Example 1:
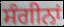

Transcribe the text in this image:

ਸੰਗੀਨਾਂ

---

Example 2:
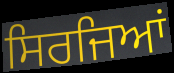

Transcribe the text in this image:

ਸਿਰਜਿਆਂ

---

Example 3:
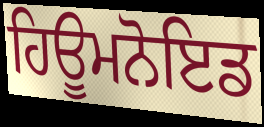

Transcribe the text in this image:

ਹਿਊਮਨੋਇਡ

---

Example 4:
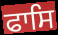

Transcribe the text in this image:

ਫਾਸਿ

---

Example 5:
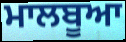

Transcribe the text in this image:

ਮਾਲਬੂਆ